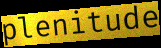
plenitude